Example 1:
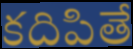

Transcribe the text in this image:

కదిపితే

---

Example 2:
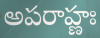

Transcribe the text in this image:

అపరాహ్ణః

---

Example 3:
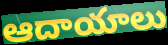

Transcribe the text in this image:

ఆదాయాలు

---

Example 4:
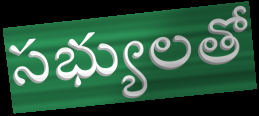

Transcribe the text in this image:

సభ్యులతో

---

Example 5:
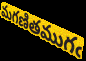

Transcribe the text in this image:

మగణితముగఁ